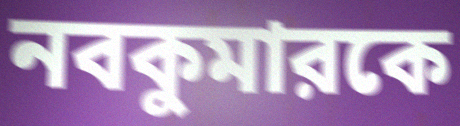
নবকুমারকে